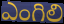
ఎంగిలి